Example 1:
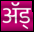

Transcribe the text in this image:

ॲड्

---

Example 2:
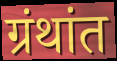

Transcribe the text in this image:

ग्रंथांत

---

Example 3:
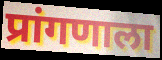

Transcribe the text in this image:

प्रांगणाला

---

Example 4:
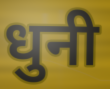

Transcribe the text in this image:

धुनी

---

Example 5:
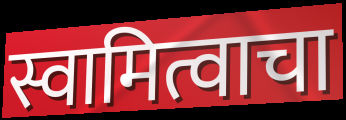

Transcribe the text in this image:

स्वामित्वाचा